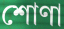
শোণা